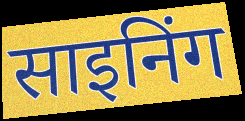
साइनिंग